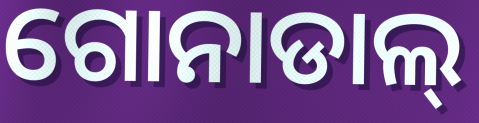
ଗୋନାଡାଲ୍